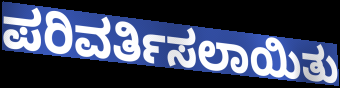
ಪರಿವರ್ತಿಸಲಾಯಿತು